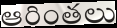
ఆరింతలు